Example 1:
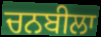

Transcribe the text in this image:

ਚਨਬੀਲਾ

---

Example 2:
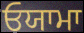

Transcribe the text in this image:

ਓਯਾਮਾ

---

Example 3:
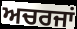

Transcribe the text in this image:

ਅਚਰਜਾਂ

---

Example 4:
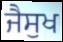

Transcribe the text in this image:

ਜੈਸੁਖ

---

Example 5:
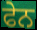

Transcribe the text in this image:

ਫੇਨ